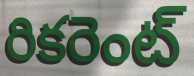
రికరెంట్